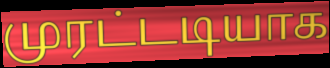
முரட்டடியாக